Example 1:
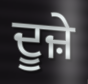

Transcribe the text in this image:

ਦੂਜ਼ੇ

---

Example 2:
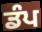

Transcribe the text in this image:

ਡੰਪ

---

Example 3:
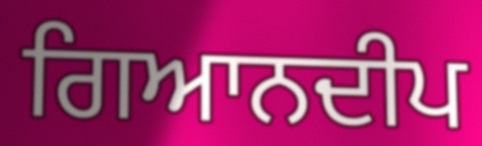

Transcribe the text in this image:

ਗਿਆਨਦੀਪ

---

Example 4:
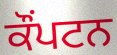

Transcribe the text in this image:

ਕੌਂਪਟਨ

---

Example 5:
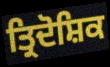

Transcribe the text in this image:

ਤ੍ਰਿਦੋਸ਼ਿਕ